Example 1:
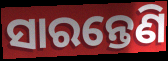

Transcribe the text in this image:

ସାରନ୍ତେଣି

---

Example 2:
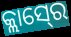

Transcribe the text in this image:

କ୍ଲାସ୍‍ରେ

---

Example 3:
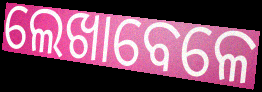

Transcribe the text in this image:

ଲେଖାବେଳେ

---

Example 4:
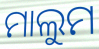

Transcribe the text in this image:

ମାଲୁମ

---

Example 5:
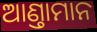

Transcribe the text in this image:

ଆଣ୍ତାମାନ